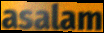
asalam